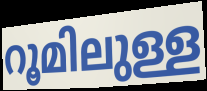
റൂമിലുള്ള